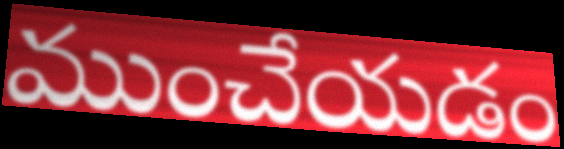
ముంచేయడం